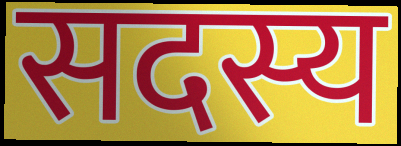
सदस्‍य